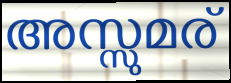
അസ്സുമര്